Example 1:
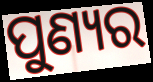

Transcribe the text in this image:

ପୁଣ୍ୟର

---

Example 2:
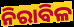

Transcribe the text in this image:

ନିରାବିଳ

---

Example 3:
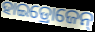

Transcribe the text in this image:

ହାଇଡ୍ରୋଜେନ୍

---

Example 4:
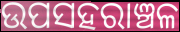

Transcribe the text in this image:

ଉପସହରାଞ୍ଚଳ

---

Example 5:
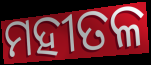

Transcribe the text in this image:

ମହୀତଳ